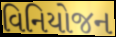
વિનિયોજન